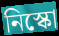
নিস্কো